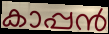
കാപ്പൻ